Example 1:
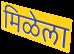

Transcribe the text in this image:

मिळेला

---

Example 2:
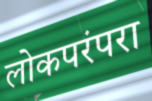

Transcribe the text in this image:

लोकपरंपरा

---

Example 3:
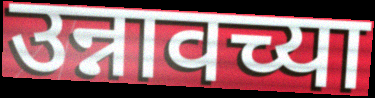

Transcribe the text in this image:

उन्नावच्या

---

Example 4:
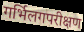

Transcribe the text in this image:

गर्भिलगपरीक्षण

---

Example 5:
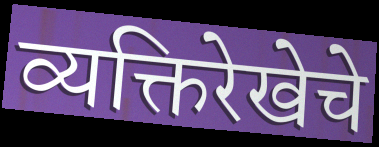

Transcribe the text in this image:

व्यक्तिरेखेचे